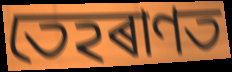
তেহৰাণত